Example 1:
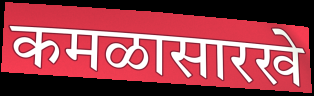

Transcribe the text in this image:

कमळासारखे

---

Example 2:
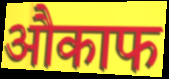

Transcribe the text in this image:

औकाफ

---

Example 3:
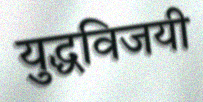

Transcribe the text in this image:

युद्धविजयी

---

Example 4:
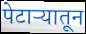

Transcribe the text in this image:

पेटाऱ्यातून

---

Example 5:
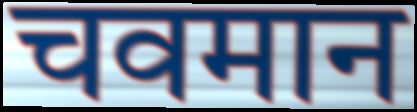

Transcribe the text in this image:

चवमान